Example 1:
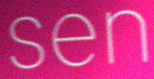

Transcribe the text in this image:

sen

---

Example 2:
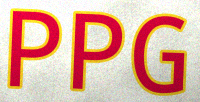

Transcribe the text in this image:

PPG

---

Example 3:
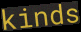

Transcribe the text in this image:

kinds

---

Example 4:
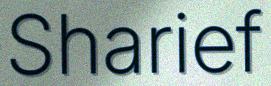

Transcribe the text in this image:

Sharief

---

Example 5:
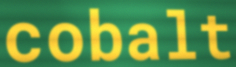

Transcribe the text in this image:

cobalt